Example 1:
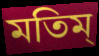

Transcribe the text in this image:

মতিম্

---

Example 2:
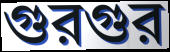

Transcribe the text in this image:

গুরগুর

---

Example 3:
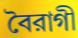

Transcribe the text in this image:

বৈরাগী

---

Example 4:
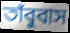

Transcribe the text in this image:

তাঁবুবাস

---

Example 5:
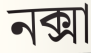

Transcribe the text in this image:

নক্সা